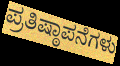
ಪ್ರತಿಷ್ಠಾಪನೆಗಳು